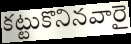
కట్టుకొనినవారై